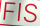
FIS